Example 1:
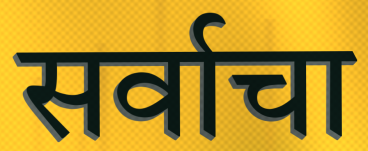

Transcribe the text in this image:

सर्वाचा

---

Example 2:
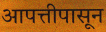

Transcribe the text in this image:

आपत्तीपासून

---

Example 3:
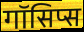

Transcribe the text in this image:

गॉसिप्स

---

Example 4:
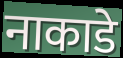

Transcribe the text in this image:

नाकाडे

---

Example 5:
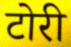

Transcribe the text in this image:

टोरी